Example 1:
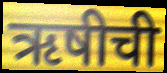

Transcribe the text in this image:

ऋषीची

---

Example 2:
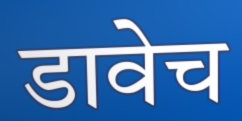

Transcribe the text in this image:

डावेच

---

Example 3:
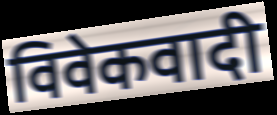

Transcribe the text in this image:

विवेकवादी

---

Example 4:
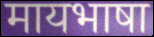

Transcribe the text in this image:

मायभाषा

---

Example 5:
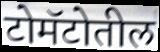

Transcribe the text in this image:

टोमॅटोतील